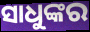
ସାଧୁଙ୍କର